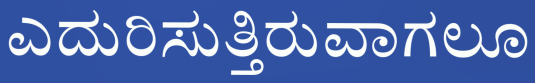
ಎದುರಿಸುತ್ತಿರುವಾಗಲೂ